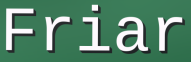
Friar